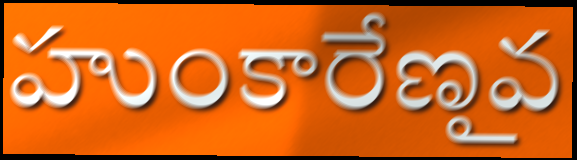
హుంకారేణౖవ